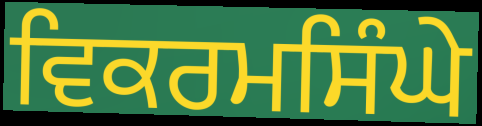
ਵਿਕਰਮਸਿੰਘੇ